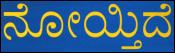
ನೋಯ್ತಿದೆ